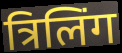
त्रिलिंग